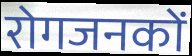
रोगजनकों